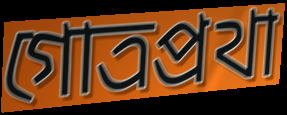
গোত্রপ্রথা